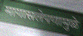
मागासलेपणामुळे